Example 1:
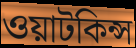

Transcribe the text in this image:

ওয়াটকিন্স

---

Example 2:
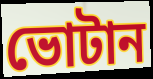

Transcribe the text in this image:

ভোটান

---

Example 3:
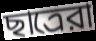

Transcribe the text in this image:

ছাত্রেরা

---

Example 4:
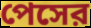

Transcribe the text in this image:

পেসের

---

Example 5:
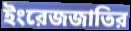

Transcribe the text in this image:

ইংরেজজাতির